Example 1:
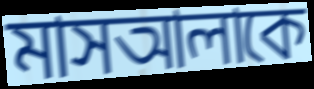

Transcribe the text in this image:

মাসআলাকে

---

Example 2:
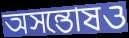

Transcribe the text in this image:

অসন্তোষও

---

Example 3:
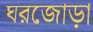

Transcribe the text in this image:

ঘরজোড়া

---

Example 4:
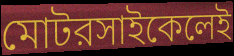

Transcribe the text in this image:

মোটরসাইকেলেই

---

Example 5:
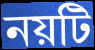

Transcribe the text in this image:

নয়টি